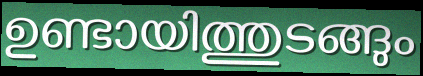
ഉണ്ടായിത്തുടങ്ങും